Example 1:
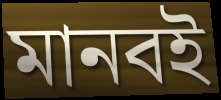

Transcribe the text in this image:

মানবই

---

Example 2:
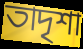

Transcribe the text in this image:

তাদৃশা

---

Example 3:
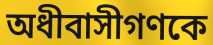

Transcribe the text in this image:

অধীবাসীগণকে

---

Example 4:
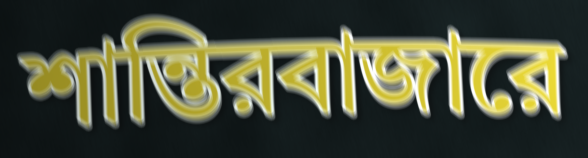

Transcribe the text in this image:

শান্তিরবাজারে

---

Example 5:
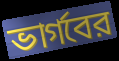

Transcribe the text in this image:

ভার্গবের